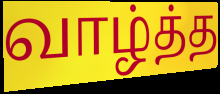
வாழ்த்த